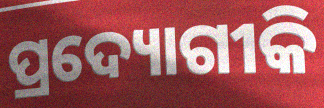
ପ୍ରଦ୍ୟୋଗୀକି